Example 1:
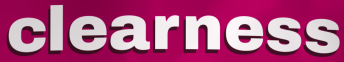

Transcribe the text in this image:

clearness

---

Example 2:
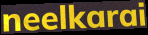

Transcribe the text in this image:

neelkarai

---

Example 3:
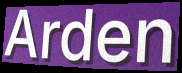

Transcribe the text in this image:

Arden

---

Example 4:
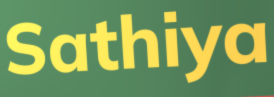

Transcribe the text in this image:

Sathiya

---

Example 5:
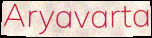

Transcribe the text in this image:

Aryavarta